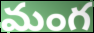
మంగ